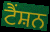
ਟੈਂਸ਼ਨ